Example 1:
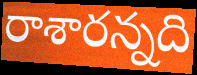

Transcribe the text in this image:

రాశారన్నది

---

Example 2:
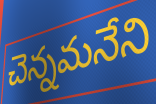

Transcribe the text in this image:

చెన్నమనేని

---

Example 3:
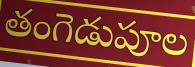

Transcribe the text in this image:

తంగెడుపూల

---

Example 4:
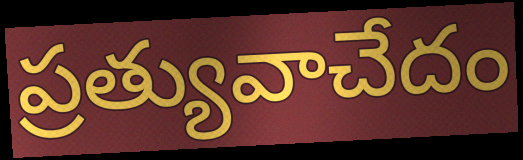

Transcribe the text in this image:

ప్రత్యువాచేదం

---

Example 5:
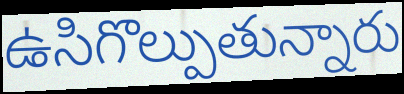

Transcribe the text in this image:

ఉసిగొల్పుతున్నారు